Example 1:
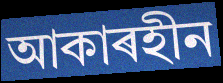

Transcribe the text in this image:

আকাৰহীন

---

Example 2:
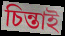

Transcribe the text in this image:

চিন্তাই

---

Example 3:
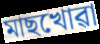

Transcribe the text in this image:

মাছখোৱা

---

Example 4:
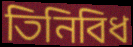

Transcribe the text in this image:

তিনিবিধ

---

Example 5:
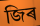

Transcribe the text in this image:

জিৰ